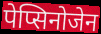
पेप्सिनोजेन